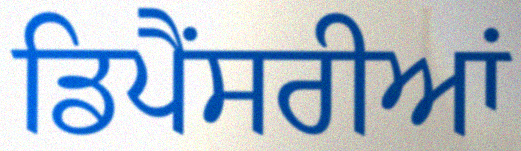
ਡਿਪੈਂਸਰੀਆਂ